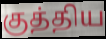
குத்திய